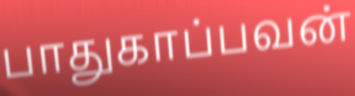
பாதுகாப்பவன்